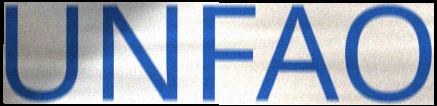
UNFAO